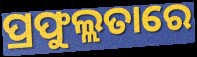
ପ୍ରଫୁଲ୍ଲତାରେ